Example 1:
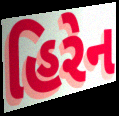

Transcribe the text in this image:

હિરેન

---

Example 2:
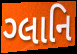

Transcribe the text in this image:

ગ્લાનિ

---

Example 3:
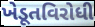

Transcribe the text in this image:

ખેડૂતવિરોધી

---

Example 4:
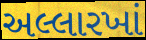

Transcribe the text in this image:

અલ્લારખાં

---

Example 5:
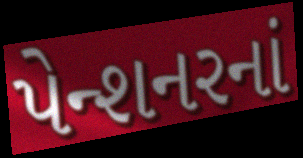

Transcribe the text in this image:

પેન્શનરનાં